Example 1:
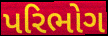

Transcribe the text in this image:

પરિભોગ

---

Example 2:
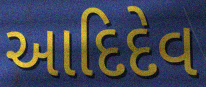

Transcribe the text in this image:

આદિદેવ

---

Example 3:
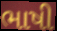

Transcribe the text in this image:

ભાષી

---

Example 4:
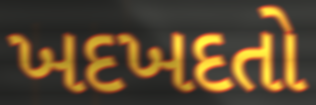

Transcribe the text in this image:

ખદખદતો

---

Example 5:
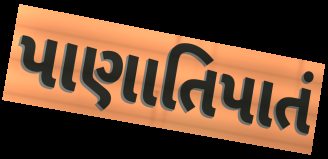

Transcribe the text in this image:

પાણાતિપાતં